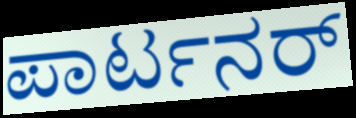
ಪಾರ್ಟನರ್